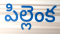
పిల్లెంక